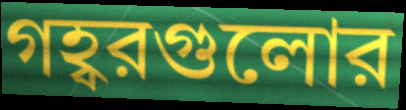
গহ্বরগুলোর